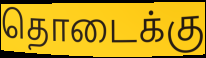
தொடைக்கு